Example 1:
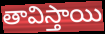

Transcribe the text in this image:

తావిస్తాయి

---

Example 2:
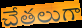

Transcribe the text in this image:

చేతలుగా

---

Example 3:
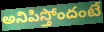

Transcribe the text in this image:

అనిపిస్తోందంటే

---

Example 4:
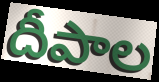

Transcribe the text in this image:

దీపాల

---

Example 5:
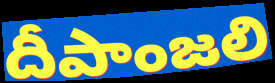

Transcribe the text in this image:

దీపాంజలి